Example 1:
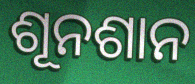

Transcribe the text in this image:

ଶୂନଶାନ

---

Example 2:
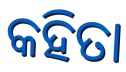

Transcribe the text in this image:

କହିତା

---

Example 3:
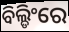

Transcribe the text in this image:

ବିଲ୍ଡିଂରେ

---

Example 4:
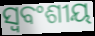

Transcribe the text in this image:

ସ୍ଵବଂଶୀୟ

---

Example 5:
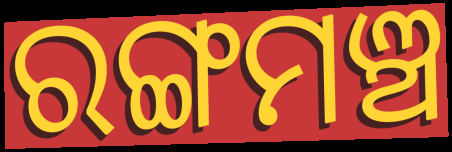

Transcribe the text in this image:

ରଙ୍ଗମଞ୍ଚ